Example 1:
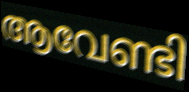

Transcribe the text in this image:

ആവേണ്ടി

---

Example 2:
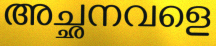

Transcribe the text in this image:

അച്ഛനവളെ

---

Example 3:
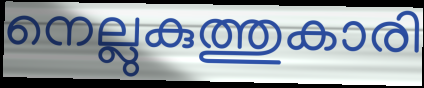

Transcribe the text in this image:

നെല്ലുകുത്തുകാരി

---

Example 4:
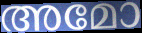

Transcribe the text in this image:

അമോ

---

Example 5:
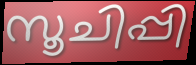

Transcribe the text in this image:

സൂചിപ്പി